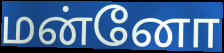
மன்னோ